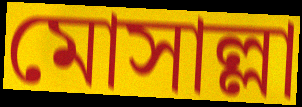
মোসাল্লা